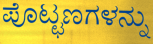
ಪೊಟ್ಟಣಗಳನ್ನು